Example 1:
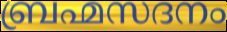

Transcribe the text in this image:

ബ്രഹ്മസദനം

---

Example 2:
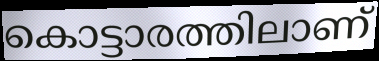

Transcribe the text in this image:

കൊട്ടാരത്തിലാണ്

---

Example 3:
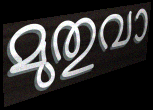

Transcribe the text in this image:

മുതുവാ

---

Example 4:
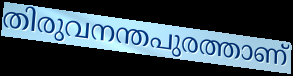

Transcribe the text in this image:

തിരുവനന്തപുരത്താണ്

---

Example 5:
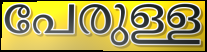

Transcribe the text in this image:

പേരുള്ള